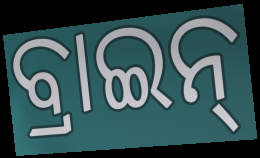
ବ୍ରାଇନ୍